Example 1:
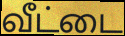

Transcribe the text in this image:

வீட்டை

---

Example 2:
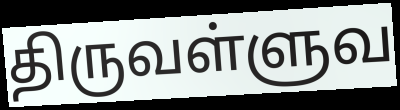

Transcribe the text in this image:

திருவள்ளுவ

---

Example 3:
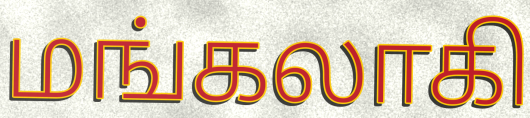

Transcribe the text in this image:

மங்கலாகி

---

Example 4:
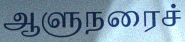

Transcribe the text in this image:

ஆளுநரைச்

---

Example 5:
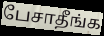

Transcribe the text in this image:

பேசாதீங்க